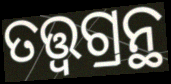
ତତ୍ତ୍ୱଗ୍ରନ୍ଥ